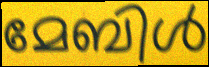
മേബിൾ